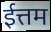
ईत्तम